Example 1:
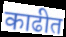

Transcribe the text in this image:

काढीत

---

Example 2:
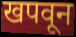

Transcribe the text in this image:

खपवून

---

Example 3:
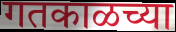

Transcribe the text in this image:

गतकाळच्या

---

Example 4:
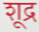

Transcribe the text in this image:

शूद्र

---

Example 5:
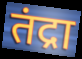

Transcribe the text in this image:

तंद्रा